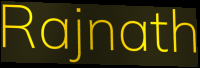
Rajnath